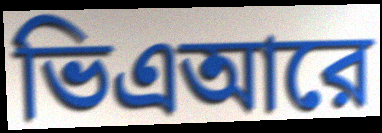
ভিএআরে